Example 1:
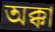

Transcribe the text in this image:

অক্কা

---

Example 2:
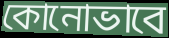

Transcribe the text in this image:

কোনোভাবে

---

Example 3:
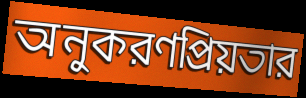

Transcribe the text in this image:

অনুকরণপ্রিয়তার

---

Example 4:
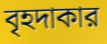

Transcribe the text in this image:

বৃহদাকার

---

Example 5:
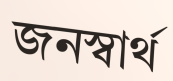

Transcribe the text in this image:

জনস্বার্থ